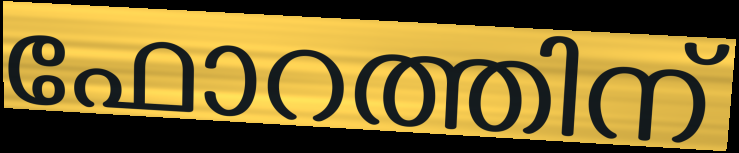
ഫോറത്തിന്